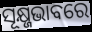
ସୂକ୍ଷ୍ଜଭାବରେ